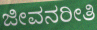
ಜೀವನರೀತಿ